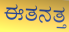
ಈತನತ್ತ